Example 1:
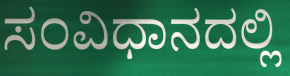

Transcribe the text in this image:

ಸಂವಿಧಾನದಲ್ಲಿ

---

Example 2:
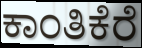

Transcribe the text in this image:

ಕಾಂತಿಕೆರೆ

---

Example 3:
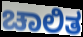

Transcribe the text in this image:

ಚಾಲಿತ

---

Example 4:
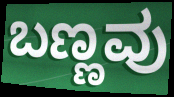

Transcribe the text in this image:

ಬಣ್ಣವು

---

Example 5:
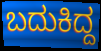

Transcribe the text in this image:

ಬದುಕಿದ್ದ